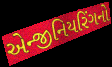
એન્જીનિયરિંગનો